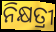
ନିକ୍ଷତ୍ରୀ